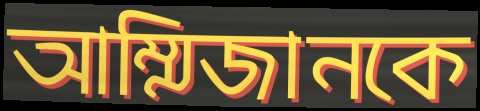
আম্মিজানকে